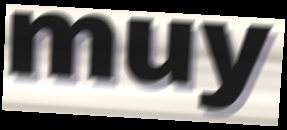
muy